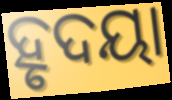
ହୃଦୟା